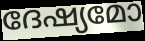
ദേഷ്യമോ